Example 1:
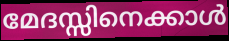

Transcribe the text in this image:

മേദസ്സിനെക്കാൾ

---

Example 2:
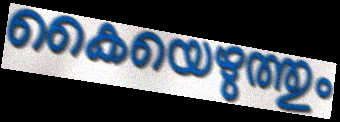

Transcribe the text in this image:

കൈയെഴുത്തും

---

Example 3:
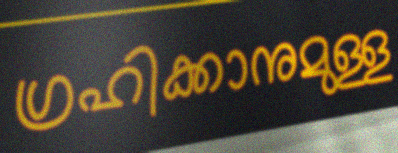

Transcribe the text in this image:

ഗ്രഹിക്കാനുമുള്ള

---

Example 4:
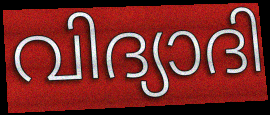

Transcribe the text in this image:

വിദ്യാദി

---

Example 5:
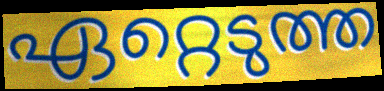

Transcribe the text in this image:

ഏറ്റെടുത്ത